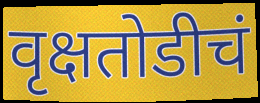
वृक्षतोडीचं